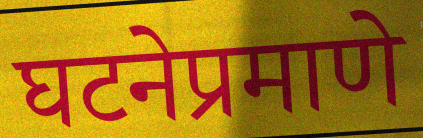
घटनेप्रमाणे